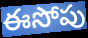
ఈసోపు